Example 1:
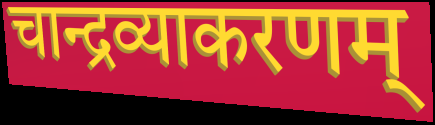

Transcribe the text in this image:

चान्द्रव्याकरणम्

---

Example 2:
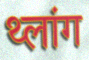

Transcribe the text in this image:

थ्लांग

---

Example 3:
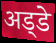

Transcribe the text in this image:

अड्‍डे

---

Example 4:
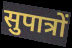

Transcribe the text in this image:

सुपात्रों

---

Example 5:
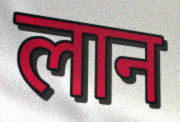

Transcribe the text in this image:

लान